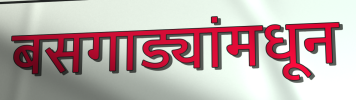
बसगाड्यांमधून